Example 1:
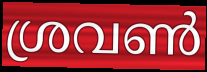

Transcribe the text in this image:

ശ്രവൺ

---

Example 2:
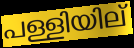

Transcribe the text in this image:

പള്ളിയില്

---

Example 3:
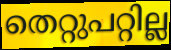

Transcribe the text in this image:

തെറ്റുപറ്റില്ല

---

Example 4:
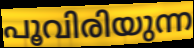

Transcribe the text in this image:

പൂവിരിയുന്ന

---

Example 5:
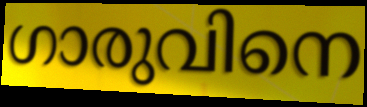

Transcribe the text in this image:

ഗാരുവിനെ